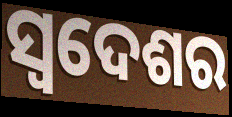
ସ୍ଵଦେଶର